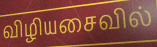
விழியசைவில்